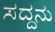
ಸದ್ದನು